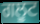
ਗਲੂਟ